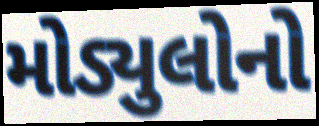
મોડ્યુલોનો